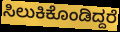
ಸಿಲುಕಿಕೊಂಡಿದ್ದರೆ